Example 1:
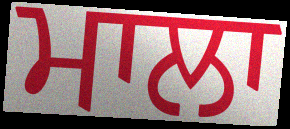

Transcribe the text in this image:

ਮਾਲਾ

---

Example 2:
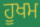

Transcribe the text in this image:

ਹੂਖਮ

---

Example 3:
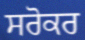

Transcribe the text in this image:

ਸਰੋਕਰ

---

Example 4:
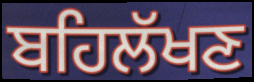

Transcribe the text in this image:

ਬਹਿਲੱਖਣ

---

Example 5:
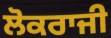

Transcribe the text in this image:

ਲੋਕਰਾਜੀ